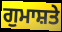
ਗੁਮਾਸ਼ਤੇ